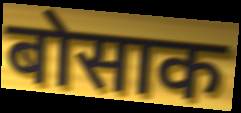
बोसाक